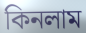
কিনলাম